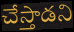
చేస్తాడని